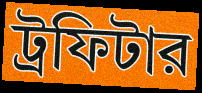
ট্রফিটার